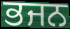
ਭਜਨ